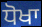
ਧੋਖਾ